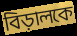
বিড়ালকে